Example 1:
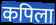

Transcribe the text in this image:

कपिला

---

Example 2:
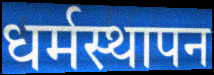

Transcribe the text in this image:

धर्मस्थापन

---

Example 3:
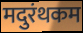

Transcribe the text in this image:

मदुरंथकम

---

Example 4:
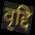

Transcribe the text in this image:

वृद्दि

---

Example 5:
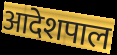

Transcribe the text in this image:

आदेशपाल